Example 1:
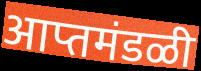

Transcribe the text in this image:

आप्तमंडळी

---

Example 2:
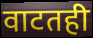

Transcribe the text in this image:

वाटतही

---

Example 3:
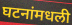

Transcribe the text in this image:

घटनांमधली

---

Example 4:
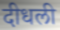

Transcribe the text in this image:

दीधली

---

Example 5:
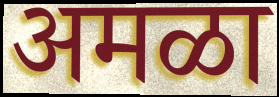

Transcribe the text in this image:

अमळा